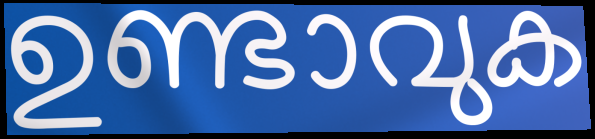
ഉണ്ടാവുക